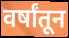
वर्षांतून